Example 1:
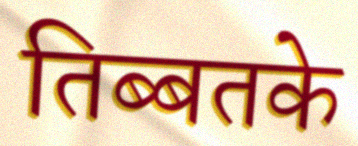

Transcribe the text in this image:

तिब्बतके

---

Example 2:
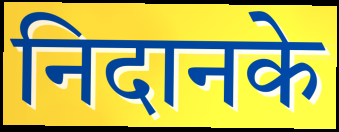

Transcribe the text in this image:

निदानके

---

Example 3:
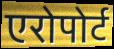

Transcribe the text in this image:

एरोपोर्ट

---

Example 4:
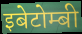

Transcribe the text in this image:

इबेटोम्बी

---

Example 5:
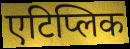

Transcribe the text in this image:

एटिप्लिक